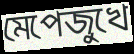
মেপেজুখে